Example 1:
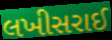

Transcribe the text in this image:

લખીસરાઈ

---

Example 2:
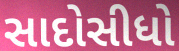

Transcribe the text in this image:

સાદોસીધો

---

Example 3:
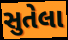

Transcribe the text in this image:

સુતેલા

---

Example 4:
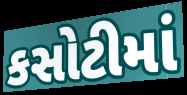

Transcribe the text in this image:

કસોટીમાં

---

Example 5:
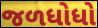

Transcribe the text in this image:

જળધોધો